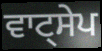
ਵਾਟ੍ਸੇਪ